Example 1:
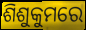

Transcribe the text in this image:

ଶିଶୁକୁମରେ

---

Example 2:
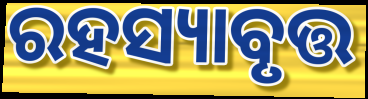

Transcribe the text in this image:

ରହସ୍ୟାବୃତ୍ତ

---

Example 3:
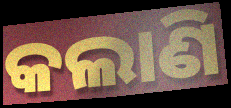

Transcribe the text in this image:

କଲାଣି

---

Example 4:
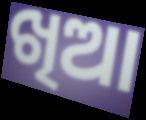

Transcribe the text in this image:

ଖିଆ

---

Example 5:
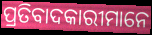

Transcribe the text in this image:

ପ୍ରତିବାଦକାରୀମାନେ